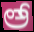
ಅ್